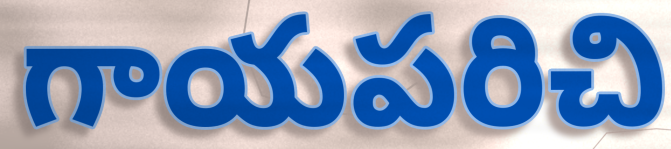
గాయపరిచి